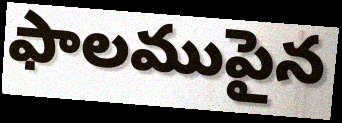
ఫాలముపైన